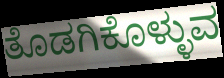
ತೊಡಗಿಕೊಳ್ಳುವ